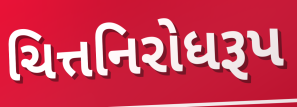
ચિત્તનિરોધરૂપ